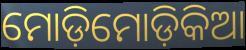
ମୋଡ଼ିମୋଡ଼ିକିଆ